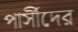
পার্সীদের